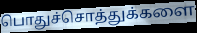
பொதுச்சொத்துக்களை